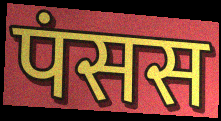
पंसस